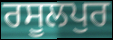
ਰਸੂਲਪੁਰ